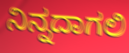
ನಿನ್ನದಾಗಲಿ